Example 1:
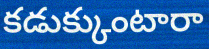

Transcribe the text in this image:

కడుక్కుంటారా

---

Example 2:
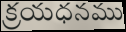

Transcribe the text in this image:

క్రయధనము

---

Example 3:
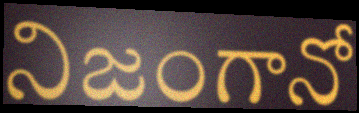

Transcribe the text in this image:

నిజంగానో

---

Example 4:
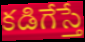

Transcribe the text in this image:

కడిగేస్తే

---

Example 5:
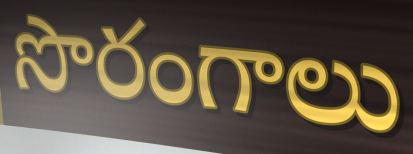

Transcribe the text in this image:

సొరంగాలు